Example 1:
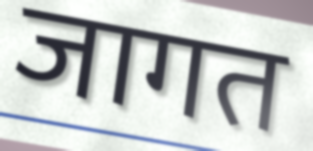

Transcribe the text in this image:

जागत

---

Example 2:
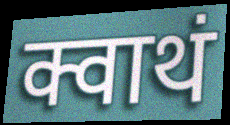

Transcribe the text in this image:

क्वाथं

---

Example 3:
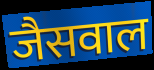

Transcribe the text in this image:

जैसवाल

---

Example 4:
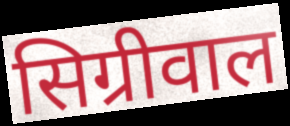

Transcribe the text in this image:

सिग्रीवाल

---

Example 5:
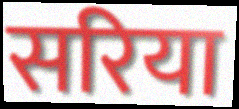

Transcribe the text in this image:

सरिया